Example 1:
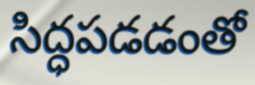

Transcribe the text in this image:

సిద్ధపడడంతో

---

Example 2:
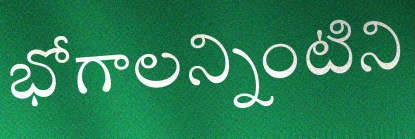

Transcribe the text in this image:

భోగాలన్నింటిని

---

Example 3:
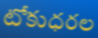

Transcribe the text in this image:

టోకుధరల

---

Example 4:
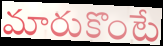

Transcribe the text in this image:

మారుకొంటే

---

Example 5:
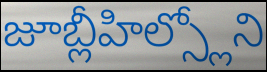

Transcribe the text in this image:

జూబ్లీహిల్స్లోని